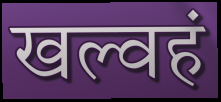
खल्वहं